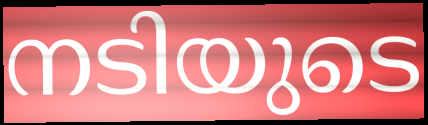
നടിയുടെ